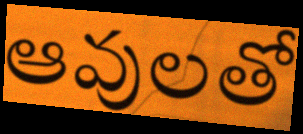
ఆవులతో